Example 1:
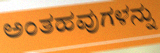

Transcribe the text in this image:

ಅಂತಹವುಗಳನ್ನು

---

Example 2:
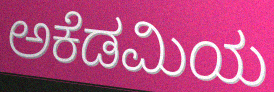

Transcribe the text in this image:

ಅಕೆಡಮಿಯ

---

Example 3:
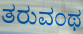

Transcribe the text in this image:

ತರುವಂಥ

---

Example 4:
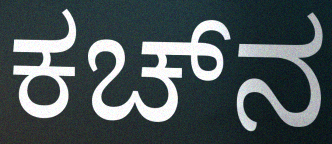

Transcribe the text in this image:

ಕಚ್‌ನ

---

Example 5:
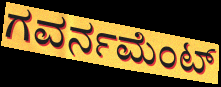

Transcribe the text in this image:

ಗವರ್ನಮೆಂಟ್